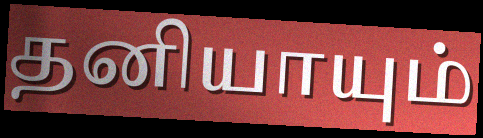
தனியாயும்